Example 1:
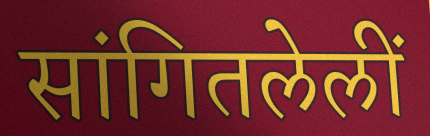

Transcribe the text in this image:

सांगितलेलीं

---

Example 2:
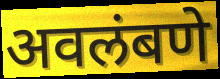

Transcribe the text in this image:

अवलंबणे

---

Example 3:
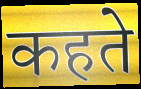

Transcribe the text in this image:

कहते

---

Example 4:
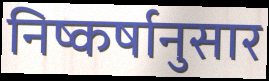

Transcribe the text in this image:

निष्कर्षानुसार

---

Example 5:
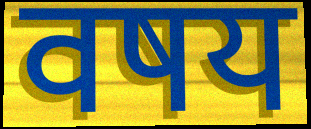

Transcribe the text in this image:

वषय